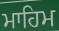
ਮਾਹਿਮ